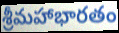
శ్రీమహాభారతం